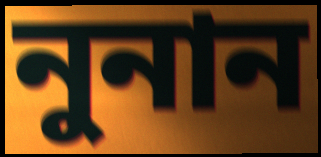
নুনান